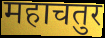
महाचतुर